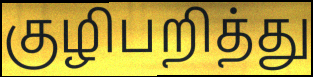
குழிபறித்து